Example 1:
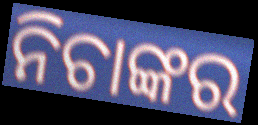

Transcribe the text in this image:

ନିଚାଙ୍କର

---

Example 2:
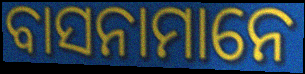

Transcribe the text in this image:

ବାସନାମାନେ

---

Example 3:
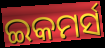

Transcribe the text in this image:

ଇକମର୍ସ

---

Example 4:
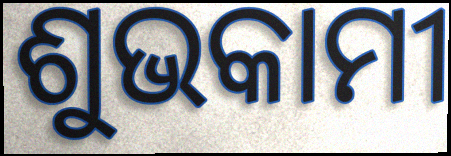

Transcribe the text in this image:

ଶୁଭକାମୀ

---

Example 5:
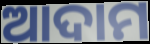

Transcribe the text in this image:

ଆଦାମ